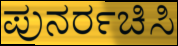
ಪುನರ್ರಚಿಸಿ